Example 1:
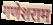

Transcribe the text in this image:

गणेशराम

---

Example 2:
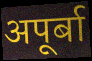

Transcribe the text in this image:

अपूर्बा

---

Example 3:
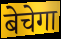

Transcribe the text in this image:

बेचेगा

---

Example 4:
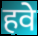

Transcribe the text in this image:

हवे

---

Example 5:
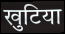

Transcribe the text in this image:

खुटिया